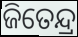
ଜିତେନ୍ଦ୍ର